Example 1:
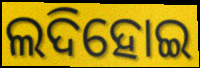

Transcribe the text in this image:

ଲଦିହୋଇ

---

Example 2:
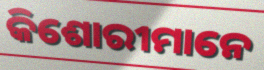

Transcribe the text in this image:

କିଶୋରୀମାନେ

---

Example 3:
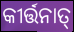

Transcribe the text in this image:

କୀର୍ତ୍ତନାତ୍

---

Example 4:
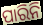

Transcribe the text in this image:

ପାରିନି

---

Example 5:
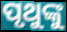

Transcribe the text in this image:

ପୃଥୁଙ୍କୁ